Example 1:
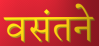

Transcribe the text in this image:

वसंतने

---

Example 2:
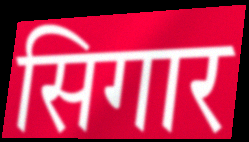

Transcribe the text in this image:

सिगार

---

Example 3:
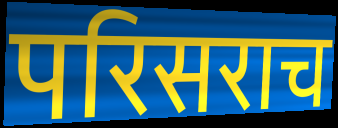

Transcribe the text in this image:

परिसराच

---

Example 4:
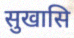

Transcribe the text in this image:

सुखासि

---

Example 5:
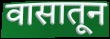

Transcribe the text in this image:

वासातून